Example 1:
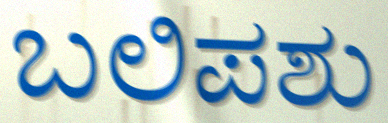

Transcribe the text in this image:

ಬಲಿಪಶು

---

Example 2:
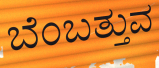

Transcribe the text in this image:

ಬೆಂಬತ್ತುವ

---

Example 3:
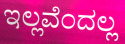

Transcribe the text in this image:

ಇಲ್ಲವೆಂದಲ್ಲ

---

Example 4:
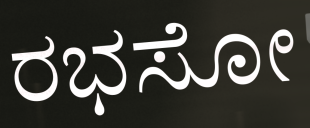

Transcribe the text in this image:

ರಭಸೋ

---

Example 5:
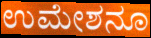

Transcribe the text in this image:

ಉಮೇಶನೂ